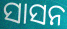
ସାସନ